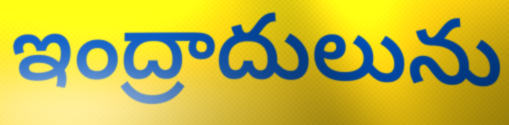
ఇంద్రాదులును